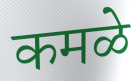
कमळे